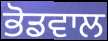
ਭੋਡਵਾਲ